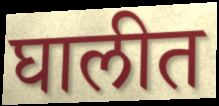
घालीत